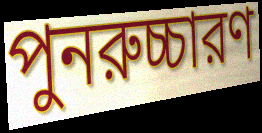
পুনরুচ্চারণ